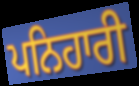
ਪਨਿਹਾਰੀ